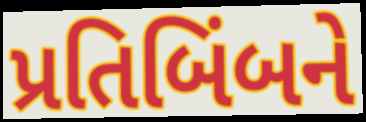
પ્રતિબિંબને